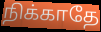
நிக்காதே